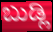
ಬುಡ್ಲಿ